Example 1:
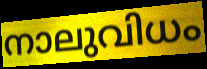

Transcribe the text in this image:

നാലുവിധം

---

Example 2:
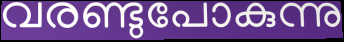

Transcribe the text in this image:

വരണ്ടുപോകുന്നു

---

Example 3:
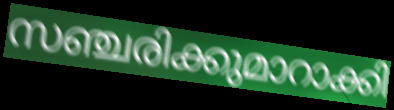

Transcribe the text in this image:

സഞ്ചരിക്കുമാറാക്കി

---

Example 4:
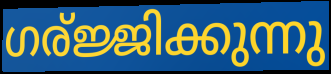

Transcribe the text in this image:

ഗര്ജ്ജിക്കുന്നു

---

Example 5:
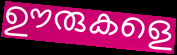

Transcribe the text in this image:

ഊരുകളെ